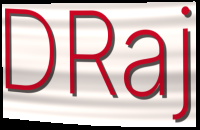
DRaj